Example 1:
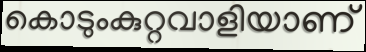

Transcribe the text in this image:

കൊടുംകുറ്റവാളിയാണ്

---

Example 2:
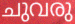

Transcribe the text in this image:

ചുവരു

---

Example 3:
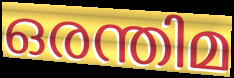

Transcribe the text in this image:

ഒരന്തിമ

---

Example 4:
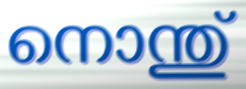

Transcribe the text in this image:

നൊന്തു്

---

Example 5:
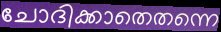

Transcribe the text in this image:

ചോദിക്കാതെതന്നെ